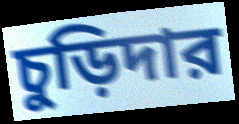
চুড়িদার